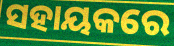
ସହାୟକରେ